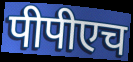
पीपीएच